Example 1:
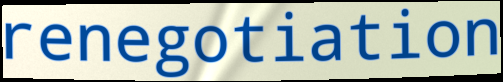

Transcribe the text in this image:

renegotiation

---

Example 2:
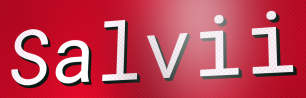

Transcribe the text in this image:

Salvii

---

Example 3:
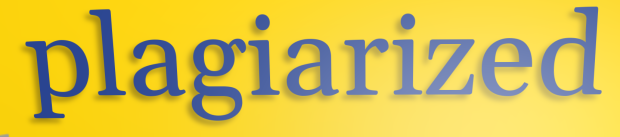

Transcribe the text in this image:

plagiarized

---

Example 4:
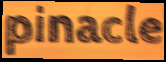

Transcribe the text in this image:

pinacle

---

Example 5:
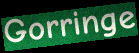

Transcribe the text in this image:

Gorringe